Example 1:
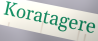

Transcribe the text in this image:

Koratagere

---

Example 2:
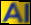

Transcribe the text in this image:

AI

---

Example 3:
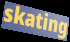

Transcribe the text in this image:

skating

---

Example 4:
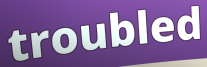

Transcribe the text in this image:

troubled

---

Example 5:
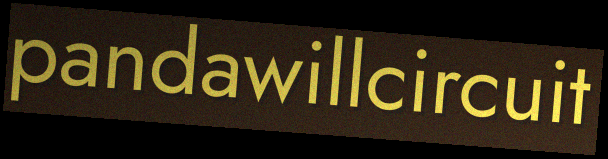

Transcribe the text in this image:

pandawillcircuit